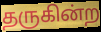
தருகின்ற